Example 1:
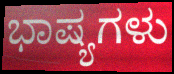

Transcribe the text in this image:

ಭಾಷ್ಯಗಳು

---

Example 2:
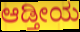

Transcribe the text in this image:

ಆಡ್ತೀಯ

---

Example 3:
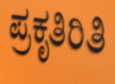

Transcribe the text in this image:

ಪ್ರಕೃತಿರಿತಿ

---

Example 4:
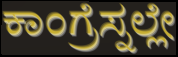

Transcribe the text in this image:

ಕಾಂಗ್ರೆಸ್ನಲ್ಲೇ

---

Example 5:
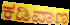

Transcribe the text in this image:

ಕಡಿವಾಣ